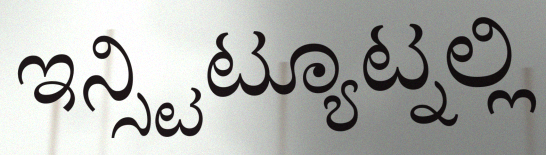
ಇನ್ಸ್ಟಿಟ್ಯೂಟ್ನಲ್ಲಿ